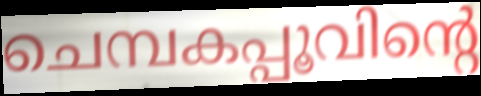
ചെമ്പകപ്പൂവിന്റെ